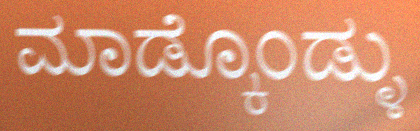
ಮಾಡ್ಕೊಂಡ್ಳು